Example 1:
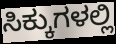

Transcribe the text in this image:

ಸಿಕ್ಕುಗಳಲ್ಲಿ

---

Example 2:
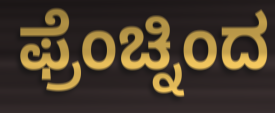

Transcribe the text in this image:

ಫ್ರೆಂಚ್ನಿಂದ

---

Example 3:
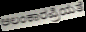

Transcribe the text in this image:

ಅಲಂಕಾರಪ್ರಿಯತೆ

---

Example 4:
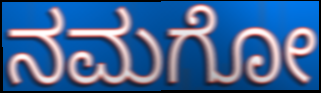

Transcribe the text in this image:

ನಮಗೋ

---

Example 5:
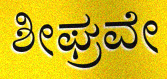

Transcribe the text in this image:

ಶೀಘ್ರವೇ